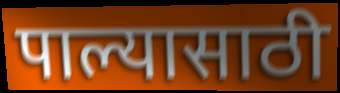
पाल्यासाठी